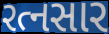
રત્નસાર